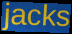
jacks